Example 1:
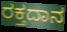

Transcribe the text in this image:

ರಕ್ತದಾನ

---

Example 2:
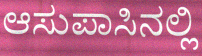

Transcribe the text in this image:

ಆಸುಪಾಸಿನಲ್ಲಿ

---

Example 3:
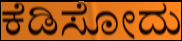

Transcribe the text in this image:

ಕೆಡಿಸೋದು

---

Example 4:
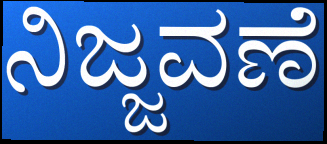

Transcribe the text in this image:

ನಿಜ್ಜವಣೆ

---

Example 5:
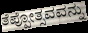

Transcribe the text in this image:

ತೆಪ್ಪೋತ್ಸವವನ್ನು